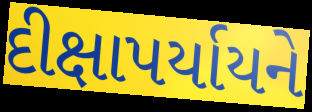
દીક્ષાપર્યાયને